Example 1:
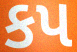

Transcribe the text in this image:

કપ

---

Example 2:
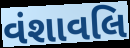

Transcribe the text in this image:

વંશાવલિ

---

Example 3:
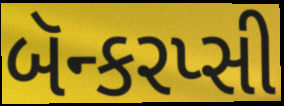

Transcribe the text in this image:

બૅન્કરપ્સી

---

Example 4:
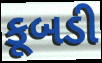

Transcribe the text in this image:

કૂબડી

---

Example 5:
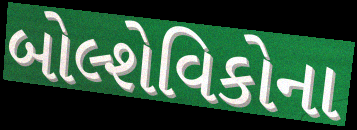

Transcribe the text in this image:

બોલ્શેવિકોના